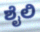
ಶೈಲಿ